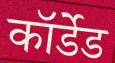
कॉर्डेड